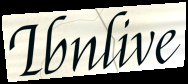
Ibnlive